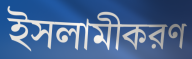
ইসলামীকরণ